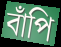
বাঁপি